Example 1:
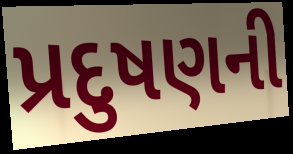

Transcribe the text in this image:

પ્રદુષણની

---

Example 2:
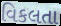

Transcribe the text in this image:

વિકલતા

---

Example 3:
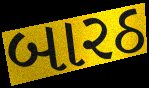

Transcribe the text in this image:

બારઠ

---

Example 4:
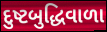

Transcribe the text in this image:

દુષ્ટબુદ્ધિવાળા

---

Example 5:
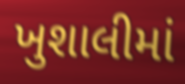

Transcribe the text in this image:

ખુશાલીમાં